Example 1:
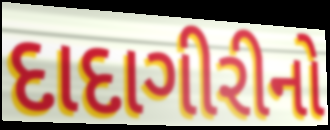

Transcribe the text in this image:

દાદાગીરીનો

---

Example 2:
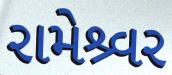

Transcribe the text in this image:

રામેશ્ર્વર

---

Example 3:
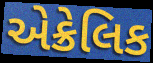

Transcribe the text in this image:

એક્રેલિક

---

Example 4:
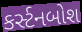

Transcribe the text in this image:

કર્સ્ટનબોશ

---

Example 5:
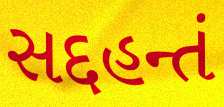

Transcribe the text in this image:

સદ્દહન્તં